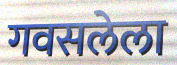
गवसलेला